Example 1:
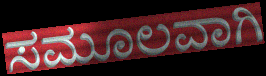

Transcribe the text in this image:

ಸಮೂಲವಾಗಿ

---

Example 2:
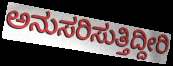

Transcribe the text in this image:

ಅನುಸರಿಸುತ್ತಿದ್ದೀರಿ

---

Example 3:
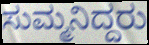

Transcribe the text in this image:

ಸುಮ್ಮನಿದ್ದರು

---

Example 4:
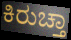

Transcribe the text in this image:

ಕಿರುಚ್ತಾ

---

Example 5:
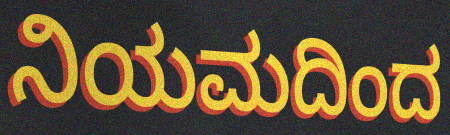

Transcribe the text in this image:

ನಿಯಮದಿಂದ